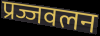
प्रज्जवलन